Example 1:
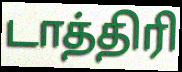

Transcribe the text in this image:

டாத்திரி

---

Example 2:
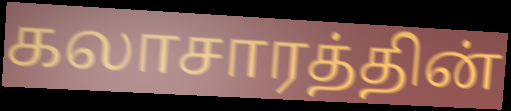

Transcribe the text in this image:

கலாசாரத்தின்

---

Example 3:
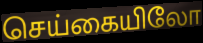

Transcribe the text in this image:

செய்கையிலோ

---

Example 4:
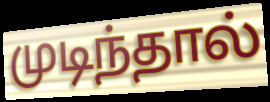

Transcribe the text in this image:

முடிந்தால்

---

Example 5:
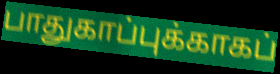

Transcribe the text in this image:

பாதுகாப்புக்காகப்